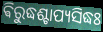
ଵିରୁଦ୍ଧଶ୍ଚାପ୍ଯସିଦ୍ଧଃ